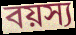
বয়স্য